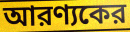
আরণ্যকের